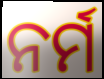
ନର୍ମ